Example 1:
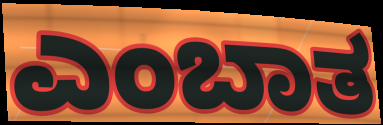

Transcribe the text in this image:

ಎಂಬಾತ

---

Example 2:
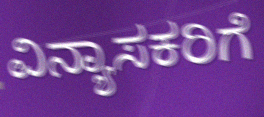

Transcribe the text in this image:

ವಿನ್ಯಾಸಕರಿಗೆ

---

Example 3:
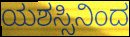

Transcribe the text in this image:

ಯಶಸ್ಸಿನಿಂದ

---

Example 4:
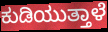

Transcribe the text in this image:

ಕುಡಿಯುತ್ತಾಳೆ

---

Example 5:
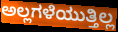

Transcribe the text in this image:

ಅಲ್ಲಗಳೆಯುತ್ತಿಲ್ಲ